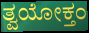
ತ್ವಯೋಕ್ತಂ